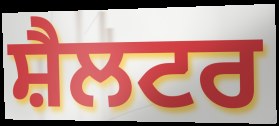
ਸ਼ੈਲਟਰ